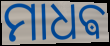
ମାଧଵ